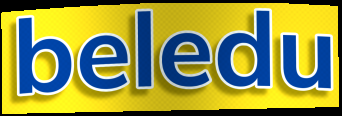
beledu